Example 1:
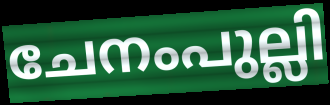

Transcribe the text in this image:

ചേനംപുല്ലി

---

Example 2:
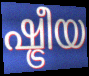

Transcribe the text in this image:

ഷ്ട്രീയ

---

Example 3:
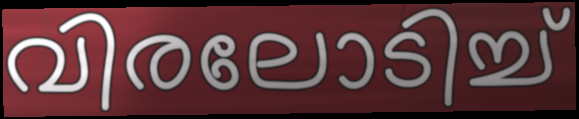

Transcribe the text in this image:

വിരലോടിച്ച്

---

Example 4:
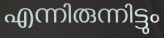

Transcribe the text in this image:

എന്നിരുന്നിട്ടും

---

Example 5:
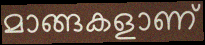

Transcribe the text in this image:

മാങ്ങകളാണ്